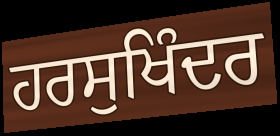
ਹਰਸੁਖਿੰਦਰ